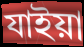
যাইয়া